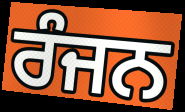
ਰੰਜਨ